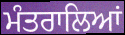
ਮੰਤਰਾਲਿਆਂ